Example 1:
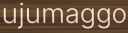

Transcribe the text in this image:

ujumaggo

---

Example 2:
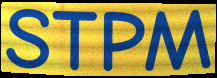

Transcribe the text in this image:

STPM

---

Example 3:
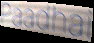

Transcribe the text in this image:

Paadhai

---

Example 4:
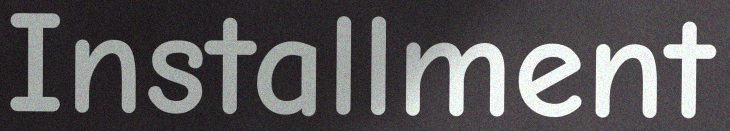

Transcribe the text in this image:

Installment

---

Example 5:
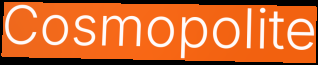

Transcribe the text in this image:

Cosmopolite